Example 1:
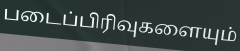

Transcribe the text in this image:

படைப்பிரிவுகளையும்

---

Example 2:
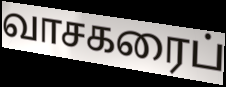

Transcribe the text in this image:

வாசகரைப்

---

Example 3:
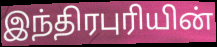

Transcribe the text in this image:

இந்திரபுரியின்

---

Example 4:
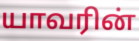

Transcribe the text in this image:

யாவரின்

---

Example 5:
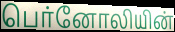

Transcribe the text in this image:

பெர்னோலியின்